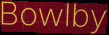
Bowlby